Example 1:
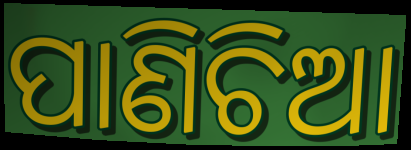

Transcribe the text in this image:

ପାଣିଚିଆ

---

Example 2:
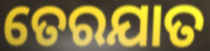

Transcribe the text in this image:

ତେରଯାତ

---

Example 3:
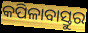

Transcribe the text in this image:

କପିଳାବାସ୍ତୁର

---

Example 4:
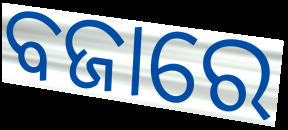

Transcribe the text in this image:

ବଜାରେ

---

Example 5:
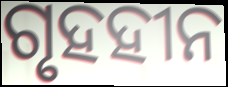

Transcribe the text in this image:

ଗୃହହୀନ